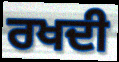
ਰਖਦੀ